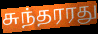
சுந்தரரது